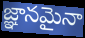
జ్ఞానమైనా